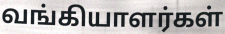
வங்கியாளர்கள்